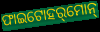
ଫାଇଟୋହର୍‌ମୋନ୍